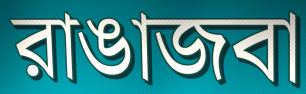
রাঙাজবা